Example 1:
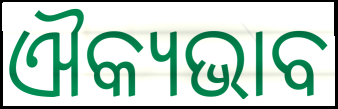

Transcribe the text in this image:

ଐକ୍ୟଭାବ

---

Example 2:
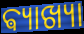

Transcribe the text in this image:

ଵ୍ଯାଖ୍ଯା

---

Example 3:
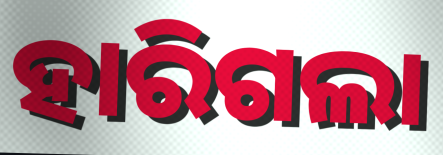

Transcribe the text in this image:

ହାରିଗଲା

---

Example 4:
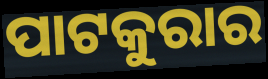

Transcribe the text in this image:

ପାଟକୁରାର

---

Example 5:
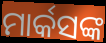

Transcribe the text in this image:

ମାର୍କସଙ୍କ